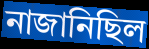
নাজানিছিল